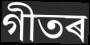
গীতৰ